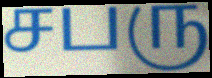
சபரு